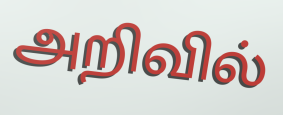
அறிவில்